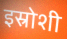
इस्रोशी